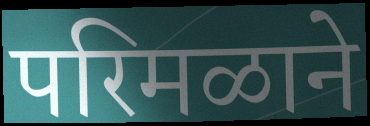
परिमळाने